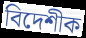
বিদেশীক